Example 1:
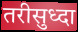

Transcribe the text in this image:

तरीसुध्दा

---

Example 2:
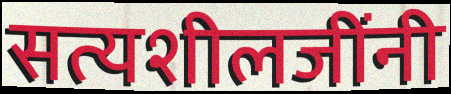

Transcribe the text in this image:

सत्यशीलजींनी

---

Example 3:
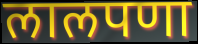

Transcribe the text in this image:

लालपणा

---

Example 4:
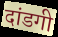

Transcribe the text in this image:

दांडगी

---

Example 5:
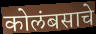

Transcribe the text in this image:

कोलंबसाचे